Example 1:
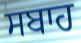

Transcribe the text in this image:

ਸਬਾਹ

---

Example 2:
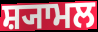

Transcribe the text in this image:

ਸ਼੍ਯਾਮਲ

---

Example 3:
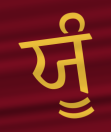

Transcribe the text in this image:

ਯੂੰ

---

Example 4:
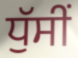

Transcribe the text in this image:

ਧੁੱਸੀਂ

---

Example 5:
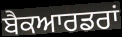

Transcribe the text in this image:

ਬੈਕਆਰਡਰਾਂ